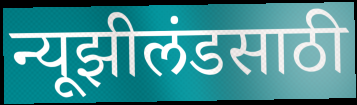
न्यूझीलंडसाठी